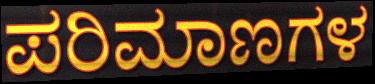
ಪರಿಮಾಣಗಳ